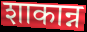
शाकान्न